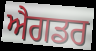
ਐਗਡਰ